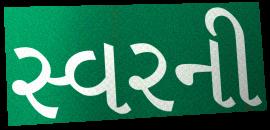
સ્વરની